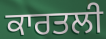
ਕਾਰਤਲੀ